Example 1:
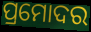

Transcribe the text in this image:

ପ୍ରମୋଦର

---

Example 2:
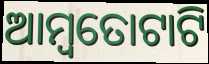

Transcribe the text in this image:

ଆମ୍ବତୋଟାଟି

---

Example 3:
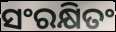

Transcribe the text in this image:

ସଂରକ୍ଷିତଂ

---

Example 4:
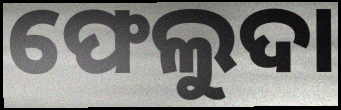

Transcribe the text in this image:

ଫେଲୁଦା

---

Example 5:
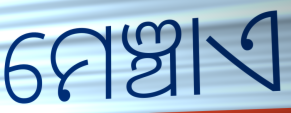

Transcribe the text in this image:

ମେଞ୍ଚାଏ